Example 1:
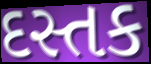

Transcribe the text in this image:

દસ્તક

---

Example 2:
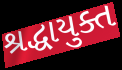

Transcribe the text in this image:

શ્રદ્ધાયુક્ત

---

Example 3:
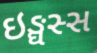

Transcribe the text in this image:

ઇઙ્ઘસ્સ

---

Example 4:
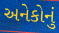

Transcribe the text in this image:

અનેકોનું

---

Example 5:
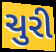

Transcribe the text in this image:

ચુરી